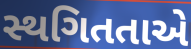
સ્થગિતતાએ